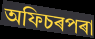
অফিচৰপৰা